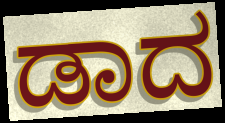
ಡಾದ